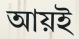
আয়ই